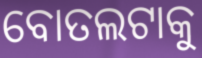
ବୋତଲଟାକୁ